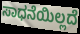
ಸಾಧನೆಯಿಲ್ಲದೆ